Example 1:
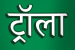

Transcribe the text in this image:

ट्रॉला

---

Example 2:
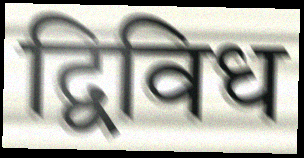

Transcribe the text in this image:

द्विविध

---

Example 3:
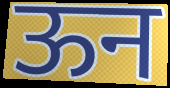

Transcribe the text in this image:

ऊन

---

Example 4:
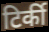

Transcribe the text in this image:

टिर्की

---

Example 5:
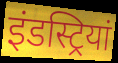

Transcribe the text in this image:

इंडस्ट्रियां